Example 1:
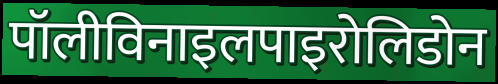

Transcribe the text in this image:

पॉलीविनाइलपाइरोलिडोन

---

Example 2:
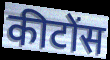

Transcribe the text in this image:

कीटोंस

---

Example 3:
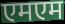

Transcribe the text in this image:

एमएम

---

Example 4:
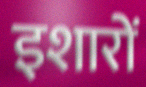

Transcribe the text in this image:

इशारों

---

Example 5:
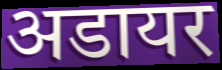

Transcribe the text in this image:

अडायर